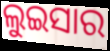
ଲୁଇସାର